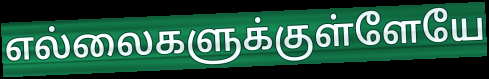
எல்லைகளுக்குள்ளேயே